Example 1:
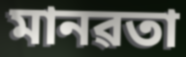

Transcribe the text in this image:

মানৱতা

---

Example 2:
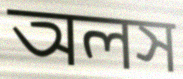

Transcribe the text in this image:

অলস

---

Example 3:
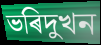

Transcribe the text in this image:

ভৰিদুখন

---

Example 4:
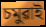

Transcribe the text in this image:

চমুৱাই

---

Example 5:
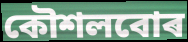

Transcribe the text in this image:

কৌশলবোৰ